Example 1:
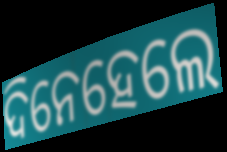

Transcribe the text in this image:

ଦିନେହେଲେ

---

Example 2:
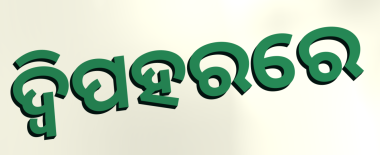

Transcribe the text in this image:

ଦ୍ୱିପହରରେ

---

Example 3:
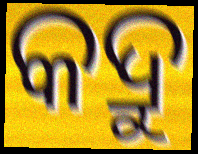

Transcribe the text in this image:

କଦ୍ରୁ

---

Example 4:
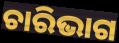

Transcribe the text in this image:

ଚାରିଭାଗ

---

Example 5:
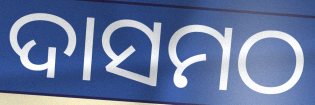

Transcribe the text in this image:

ଦାସମଠ